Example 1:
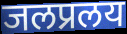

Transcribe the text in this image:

जलप्रलय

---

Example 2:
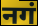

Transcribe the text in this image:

नगं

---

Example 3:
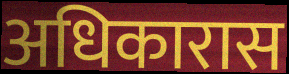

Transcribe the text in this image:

अधिकारास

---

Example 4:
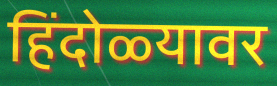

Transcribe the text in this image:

हिंदोळ्यावर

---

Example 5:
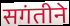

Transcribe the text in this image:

सगंतीने